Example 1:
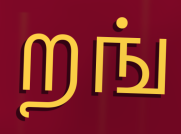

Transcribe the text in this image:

றங்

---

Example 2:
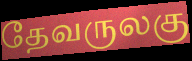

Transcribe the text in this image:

தேவருலகு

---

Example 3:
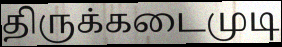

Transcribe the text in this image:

திருக்கடைமுடி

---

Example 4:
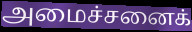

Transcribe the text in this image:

அமைச்சனைக்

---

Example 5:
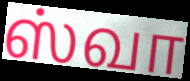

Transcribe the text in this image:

ஸ்வா